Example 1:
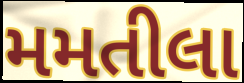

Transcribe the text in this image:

મમતીલા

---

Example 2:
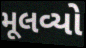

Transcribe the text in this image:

મૂલવ્યો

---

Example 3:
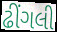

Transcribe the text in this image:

ઢીંગલી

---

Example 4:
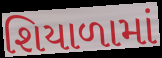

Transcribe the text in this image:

શિયાળામાં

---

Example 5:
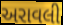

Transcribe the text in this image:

અરાવલી